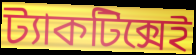
ট্যাকটিক্সেই